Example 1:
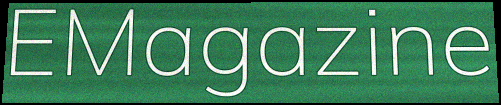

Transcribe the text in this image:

EMagazine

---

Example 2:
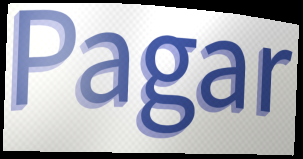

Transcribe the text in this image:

Pagar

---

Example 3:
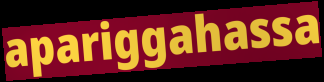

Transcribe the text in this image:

apariggahassa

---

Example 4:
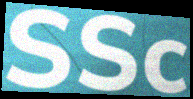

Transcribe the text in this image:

SSc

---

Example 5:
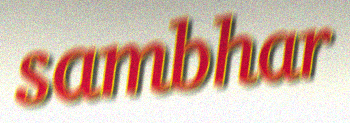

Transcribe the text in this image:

sambhar